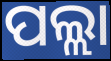
ପଲ୍ଲା